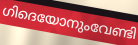
ഗിദെയോനുംവേണ്ടി